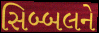
સિબ્બલને